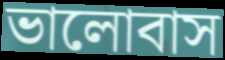
ভালোবাস